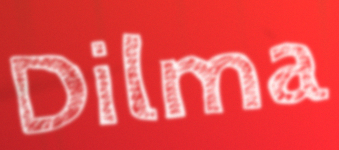
Dilma